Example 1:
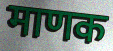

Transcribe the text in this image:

माणक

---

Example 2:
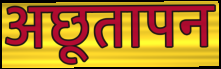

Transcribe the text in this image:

अछूतापन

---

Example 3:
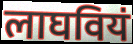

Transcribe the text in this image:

लाघवियं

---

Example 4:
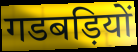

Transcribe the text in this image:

गडबड़ियों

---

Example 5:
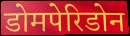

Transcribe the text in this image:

डोमपेरिडोन